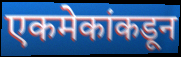
एकमेकांकडून